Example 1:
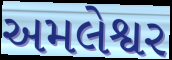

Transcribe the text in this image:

અમલેશ્વર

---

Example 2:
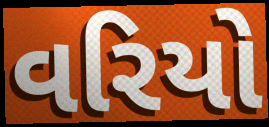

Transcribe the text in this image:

વરિયો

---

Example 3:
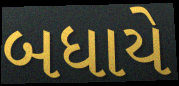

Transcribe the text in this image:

બધાયે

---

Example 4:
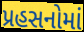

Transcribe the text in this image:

પ્રહસનોમાં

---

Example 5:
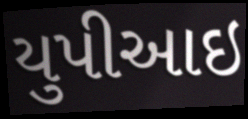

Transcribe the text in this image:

યુપીઆઇ